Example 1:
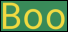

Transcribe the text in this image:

Boo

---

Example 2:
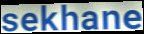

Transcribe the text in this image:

sekhane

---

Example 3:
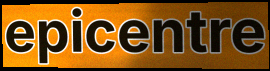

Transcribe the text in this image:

epicentre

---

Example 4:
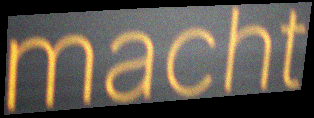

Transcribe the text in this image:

macht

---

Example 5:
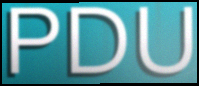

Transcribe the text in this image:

PDU